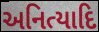
અનિત્યાદિ